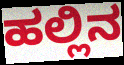
ಹಲ್ಲಿನ